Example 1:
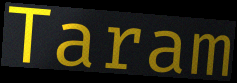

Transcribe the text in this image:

Taram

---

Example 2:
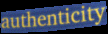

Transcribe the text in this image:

authenticity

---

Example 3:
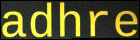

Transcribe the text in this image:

adhre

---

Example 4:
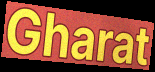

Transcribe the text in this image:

Gharat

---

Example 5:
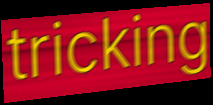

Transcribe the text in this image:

tricking